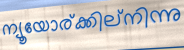
ന്യൂയോര്ക്കില്നിന്നു